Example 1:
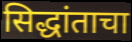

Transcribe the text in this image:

सिद्धांताचा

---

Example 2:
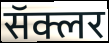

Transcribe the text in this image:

सॅक्लर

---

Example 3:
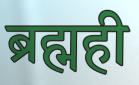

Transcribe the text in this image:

ब्रह्मही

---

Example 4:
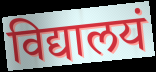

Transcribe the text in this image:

विद्यालयं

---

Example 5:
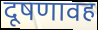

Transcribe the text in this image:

दूषणावह